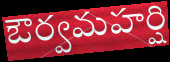
ఔర్వమహర్షి